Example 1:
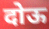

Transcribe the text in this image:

दोऊ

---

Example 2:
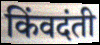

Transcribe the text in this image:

किंवदंती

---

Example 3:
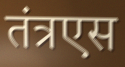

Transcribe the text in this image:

तंत्रएस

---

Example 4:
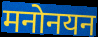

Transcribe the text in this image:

मनोनयन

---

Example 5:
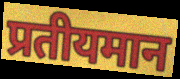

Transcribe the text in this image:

प्रतीयमान